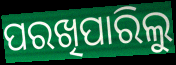
ପରଖିପାରିଲୁ